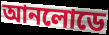
আনলোডে